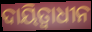
ଦାୟିତ୍ୱାଧୀନ